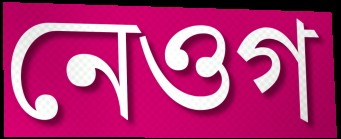
নেওগ